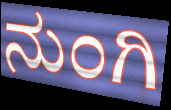
ನುಂಗಿ